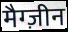
मैग्ज़ीन